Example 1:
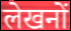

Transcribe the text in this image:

लेखनों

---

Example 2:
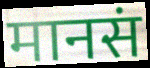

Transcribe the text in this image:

मानसं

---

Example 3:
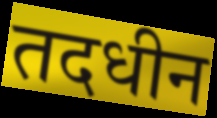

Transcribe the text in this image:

तदधीन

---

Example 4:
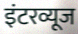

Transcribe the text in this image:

इंटरव्यूज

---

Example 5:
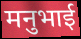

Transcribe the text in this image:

मनुभाई